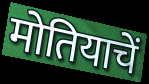
मोतियाचें